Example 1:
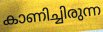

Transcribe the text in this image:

കാണിച്ചിരുന്ന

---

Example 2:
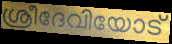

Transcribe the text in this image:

ശ്രീദേവിയോട്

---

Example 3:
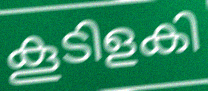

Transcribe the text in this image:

കൂടിളകി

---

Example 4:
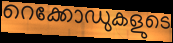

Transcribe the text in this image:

റെക്കോഡുകളുടെ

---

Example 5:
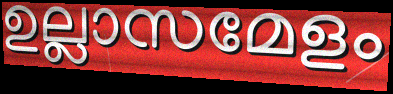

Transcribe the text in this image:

ഉല്ലാസമേളം